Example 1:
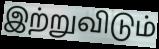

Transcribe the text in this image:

இற்றுவிடும்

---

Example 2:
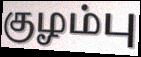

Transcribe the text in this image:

குழம்பு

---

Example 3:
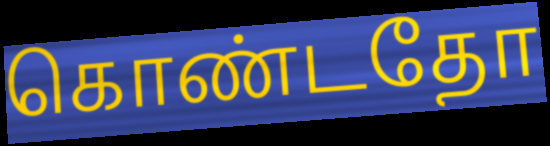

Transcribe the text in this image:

கொண்டதோ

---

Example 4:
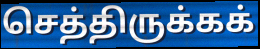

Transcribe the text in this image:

செத்திருக்கக்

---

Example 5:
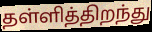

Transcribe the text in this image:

தள்ளித்திறந்து